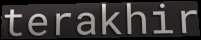
terakhir